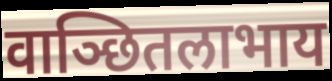
वाञ्छितलाभाय